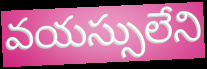
వయస్సులేని